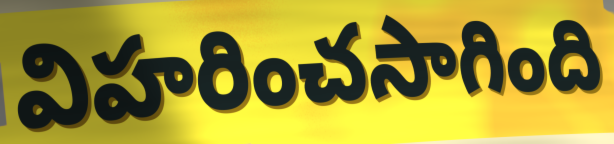
విహరించసాగింది